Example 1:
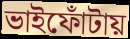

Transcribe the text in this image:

ভাইফোঁটায়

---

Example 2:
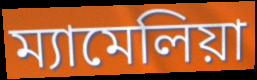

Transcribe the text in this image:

ম্যামেলিয়া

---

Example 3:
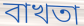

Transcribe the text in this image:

বাখতা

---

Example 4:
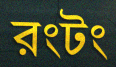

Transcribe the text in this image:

রংটং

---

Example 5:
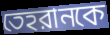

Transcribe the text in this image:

তেহরানকে